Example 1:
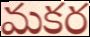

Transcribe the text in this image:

మకర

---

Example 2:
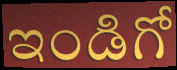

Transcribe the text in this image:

ఇండిగో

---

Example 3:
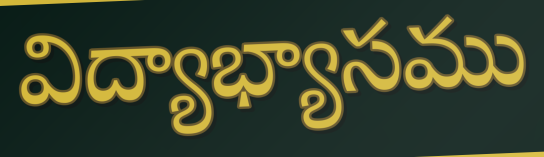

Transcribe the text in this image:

విద్యాభ్యాసము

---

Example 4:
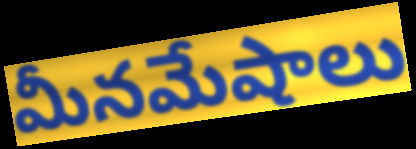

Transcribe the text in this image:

మీనమేషాలు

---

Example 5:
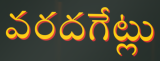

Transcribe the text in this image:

వరదగేట్లు